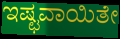
ಇಷ್ಟವಾಯಿತೇ